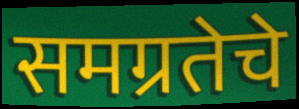
समग्रतेचे